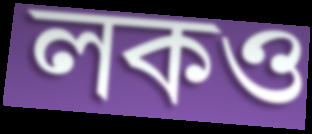
লকও